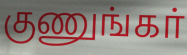
குணுங்கர்